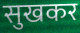
सुखकर